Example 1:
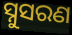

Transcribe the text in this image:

ସ୍ନୁସରଣ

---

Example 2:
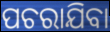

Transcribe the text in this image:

ପଚରାଯିବା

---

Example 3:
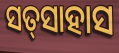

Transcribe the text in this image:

ସତ୍‌ସାହାସ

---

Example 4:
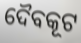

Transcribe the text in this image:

ଦୈବକୂଟ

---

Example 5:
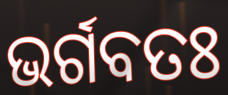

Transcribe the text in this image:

ଭର୍ଗବତଃ